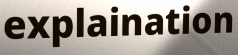
explaination